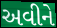
અવીને